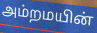
அம்றமயின்